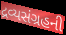
દ્રવ્યસંગ્રહની